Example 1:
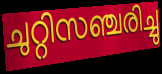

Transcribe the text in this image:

ചുറ്റിസഞ്ചരിച്ചു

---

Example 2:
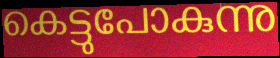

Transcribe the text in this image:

കെട്ടുപോകുന്നു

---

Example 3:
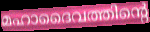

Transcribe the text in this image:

മഹാദൈവത്തിന്റെ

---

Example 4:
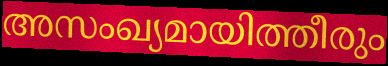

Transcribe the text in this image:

അസംഖ്യമായിത്തീരും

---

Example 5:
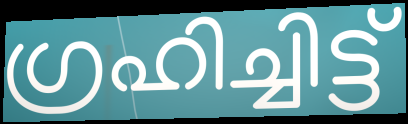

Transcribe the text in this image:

ഗ്രഹിച്ചിട്ട്